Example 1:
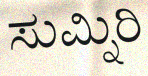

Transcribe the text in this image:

ಸುಮ್ನಿರಿ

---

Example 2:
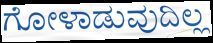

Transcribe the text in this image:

ಗೋಳಾಡುವುದಿಲ್ಲ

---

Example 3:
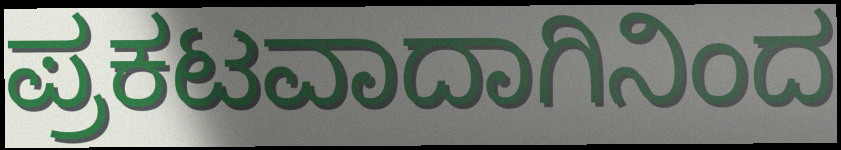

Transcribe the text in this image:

ಪ್ರಕಟವಾದಾಗಿನಿಂದ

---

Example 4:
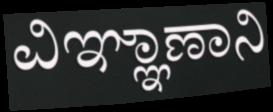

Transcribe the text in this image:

ವಿಞ್ಞಾಣಾನಿ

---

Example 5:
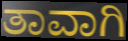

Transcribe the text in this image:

ತಾವಾಗಿ